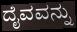
ದೈವವನ್ನು